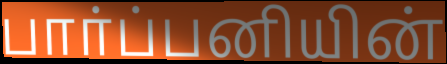
பார்ப்பனியின்